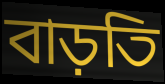
বাড়তি